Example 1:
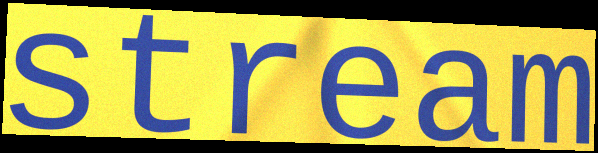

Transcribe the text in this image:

stream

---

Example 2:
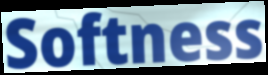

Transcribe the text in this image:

Softness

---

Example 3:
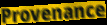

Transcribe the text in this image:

Provenance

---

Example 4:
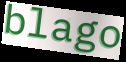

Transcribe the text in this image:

blago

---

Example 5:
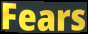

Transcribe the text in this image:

Fears